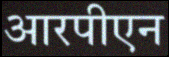
आरपीएन